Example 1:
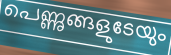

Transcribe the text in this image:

പെണ്ണുങ്ങളുടേയും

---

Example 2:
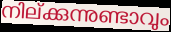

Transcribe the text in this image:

നില്ക്കുന്നുണ്ടാവും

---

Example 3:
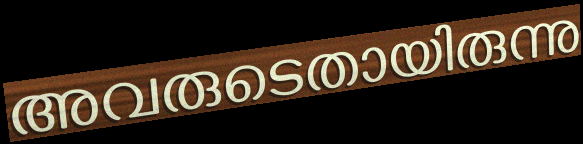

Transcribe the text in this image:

അവരുടെതായിരുന്നു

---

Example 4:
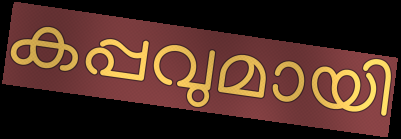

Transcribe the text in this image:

കപ്പവുമായി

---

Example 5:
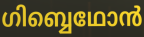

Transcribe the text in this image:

ഗിബ്ബെഥോൻ